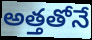
అత్తతోనే